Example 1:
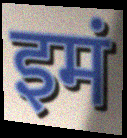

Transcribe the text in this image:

इमं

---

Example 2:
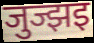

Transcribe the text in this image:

जुज्झइ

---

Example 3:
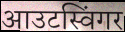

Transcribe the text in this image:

आउटस्विंगर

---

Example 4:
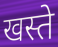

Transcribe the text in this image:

खस्ते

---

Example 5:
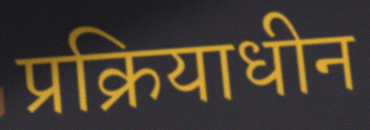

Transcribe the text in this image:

प्रक्रियाधीन